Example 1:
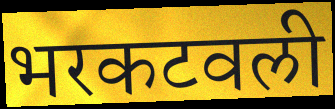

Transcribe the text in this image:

भरकटवली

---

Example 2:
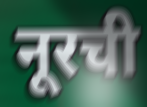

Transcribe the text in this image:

नूरची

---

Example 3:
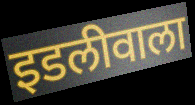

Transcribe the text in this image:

इडलीवाला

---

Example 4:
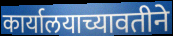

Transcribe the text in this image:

कार्यालयाच्यावतीने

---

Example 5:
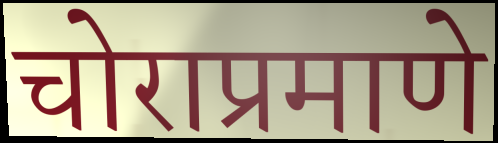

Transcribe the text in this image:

चोराप्रमाणे